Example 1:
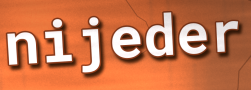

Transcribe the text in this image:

nijeder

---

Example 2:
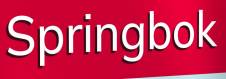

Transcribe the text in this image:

Springbok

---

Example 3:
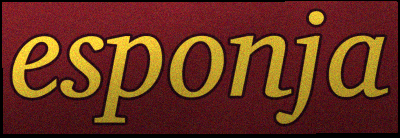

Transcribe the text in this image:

esponja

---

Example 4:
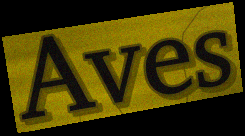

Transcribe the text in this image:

Aves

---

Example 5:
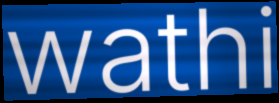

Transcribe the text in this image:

wathi